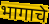
भागाचे